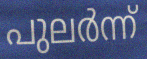
പുലർന്ന്